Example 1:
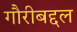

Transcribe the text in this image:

गौरीबद्दल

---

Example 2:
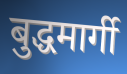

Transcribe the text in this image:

बुद्धमार्गी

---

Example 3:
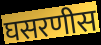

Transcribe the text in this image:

घसरणीस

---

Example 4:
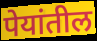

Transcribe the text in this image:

पेयांतील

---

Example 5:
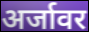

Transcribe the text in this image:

अर्जावर